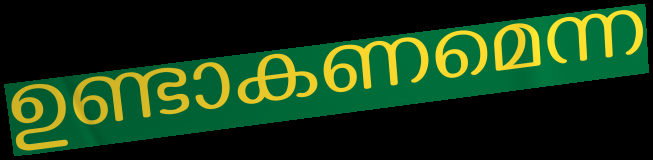
ഉണ്ടാകണമെന്ന